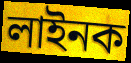
লাইনক